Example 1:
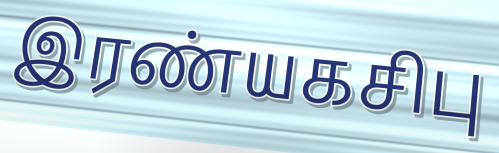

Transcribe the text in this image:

இரண்யகசிபு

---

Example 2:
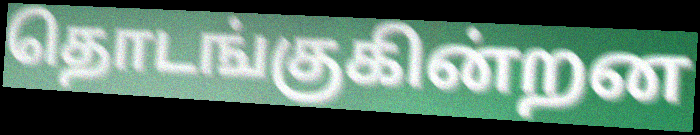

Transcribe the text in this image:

தொடங்குகின்றன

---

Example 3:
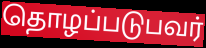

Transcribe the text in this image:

தொழப்படுபவர்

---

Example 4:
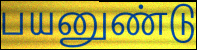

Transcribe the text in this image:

பயனுண்டு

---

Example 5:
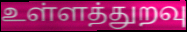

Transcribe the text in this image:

உள்ளத்துறவு